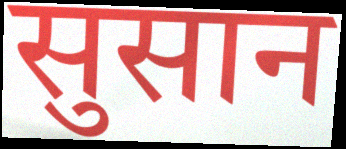
सुसान